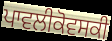
ਪਾਵਲੀਕੋਵਸਕੀ